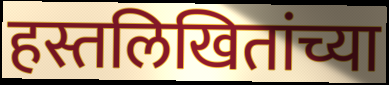
हस्तलिखितांच्या